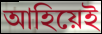
আহিয়েই